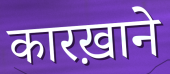
कारख़ाने